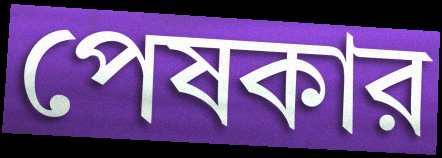
পেষকার